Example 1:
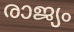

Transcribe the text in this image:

രാജ്യം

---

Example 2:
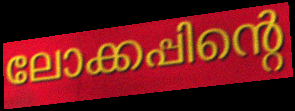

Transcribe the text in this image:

ലോക്കപ്പിന്റെ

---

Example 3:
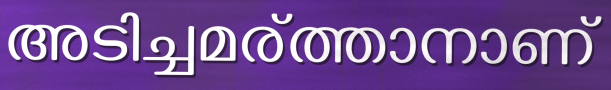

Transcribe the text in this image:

അടിച്ചമര്ത്താനാണ്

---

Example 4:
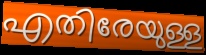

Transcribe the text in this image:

എതിരേയുള്ള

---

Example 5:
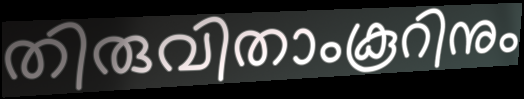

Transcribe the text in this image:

തിരുവിതാംകൂറിനും